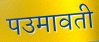
पउमावती